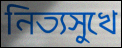
নিত্যসুখে